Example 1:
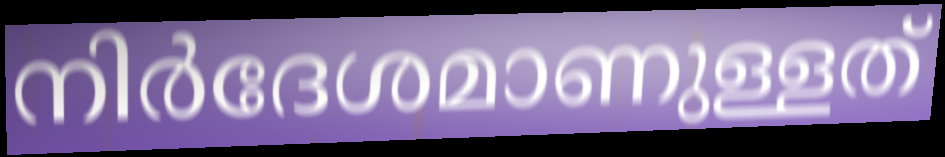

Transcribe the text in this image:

നിർദേശമാണുള്ളത്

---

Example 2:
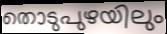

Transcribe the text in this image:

തൊടുപുഴയിലും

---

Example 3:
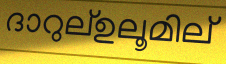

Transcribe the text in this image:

ദാറുല്ഉലൂമില്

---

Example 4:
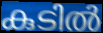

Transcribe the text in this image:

കുടിൽ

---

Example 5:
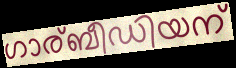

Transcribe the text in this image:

ഗാര്ബീഡിയന്